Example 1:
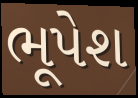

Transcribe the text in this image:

ભૂપેશ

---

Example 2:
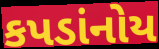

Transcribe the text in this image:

કપડાંનોય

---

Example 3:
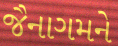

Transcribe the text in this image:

જૈનાગમને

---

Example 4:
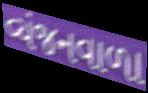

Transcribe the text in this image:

વ્યંજનવાળા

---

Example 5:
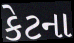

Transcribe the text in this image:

કેટના